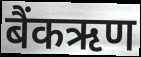
बैंकऋण